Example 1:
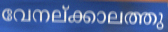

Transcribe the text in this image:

വേനല്ക്കാലത്തു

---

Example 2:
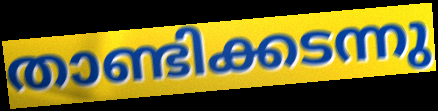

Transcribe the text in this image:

താണ്ടിക്കടന്നു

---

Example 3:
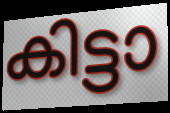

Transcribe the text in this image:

കിട്ടാ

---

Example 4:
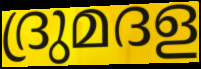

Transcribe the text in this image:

ദ്രുമദള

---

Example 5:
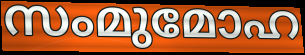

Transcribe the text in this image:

സംമുമോഹ